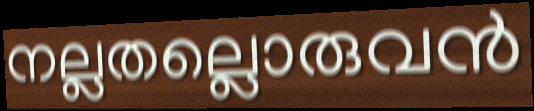
നല്ലതല്ലൊരുവൻ